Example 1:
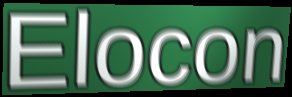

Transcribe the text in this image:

Elocon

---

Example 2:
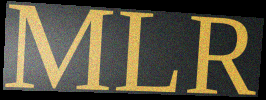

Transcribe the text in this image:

MLR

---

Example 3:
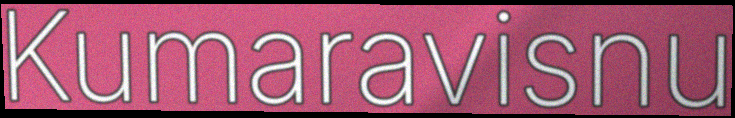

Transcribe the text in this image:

Kumaravisnu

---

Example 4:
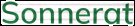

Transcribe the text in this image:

Sonnerat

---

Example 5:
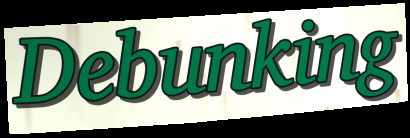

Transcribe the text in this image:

Debunking